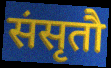
संसृतौ